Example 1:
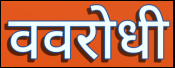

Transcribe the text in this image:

ववरोधी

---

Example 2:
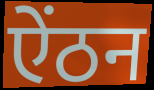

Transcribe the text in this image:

ऐंठन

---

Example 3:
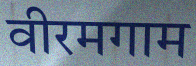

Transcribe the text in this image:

वीरमगाम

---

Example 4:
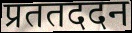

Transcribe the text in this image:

प्रततददन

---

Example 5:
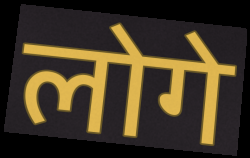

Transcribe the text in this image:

लोगे